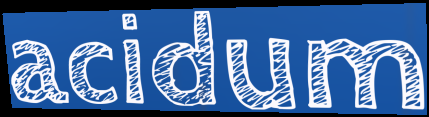
acidum